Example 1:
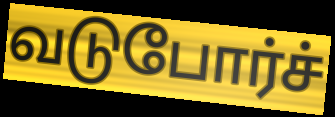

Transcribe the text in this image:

வடுபோர்ச்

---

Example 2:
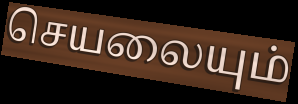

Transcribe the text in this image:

செயலையும்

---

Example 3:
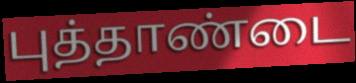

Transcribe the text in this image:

புத்தாண்டை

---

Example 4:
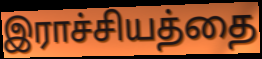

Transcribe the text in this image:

இராச்சியத்தை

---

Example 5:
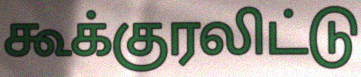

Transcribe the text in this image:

கூக்குரலிட்டு